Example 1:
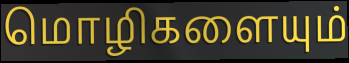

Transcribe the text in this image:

மொழிகளையும்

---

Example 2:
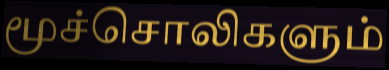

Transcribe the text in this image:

மூச்சொலிகளும்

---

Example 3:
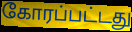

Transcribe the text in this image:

கோரப்பட்டது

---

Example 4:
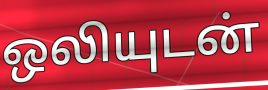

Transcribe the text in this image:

ஒலியுடன்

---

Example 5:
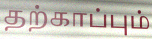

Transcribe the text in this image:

தற்காப்பும்